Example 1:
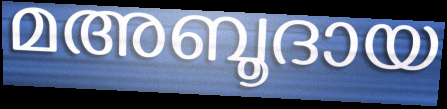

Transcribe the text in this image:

മഅബൂദായ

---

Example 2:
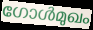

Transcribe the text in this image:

ഗോൾമുഖം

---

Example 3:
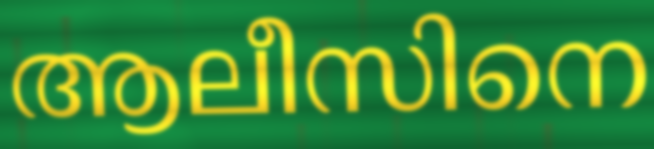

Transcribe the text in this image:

ആലീസിനെ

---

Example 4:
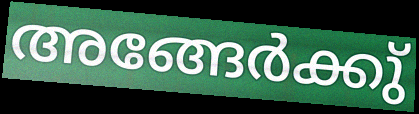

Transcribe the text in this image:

അങ്ങേർക്കു്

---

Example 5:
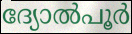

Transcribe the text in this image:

ദ്യോൽപൂർ